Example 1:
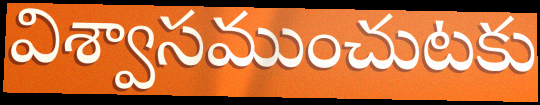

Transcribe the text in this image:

విశ్వాసముంచుటకు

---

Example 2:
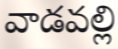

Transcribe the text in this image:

వాడవల్లి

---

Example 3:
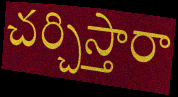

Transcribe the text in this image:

చర్చిస్తారా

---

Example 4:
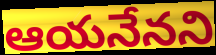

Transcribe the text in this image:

ఆయనేనని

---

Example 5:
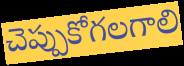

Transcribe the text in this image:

చెప్పుకోగలగాలి